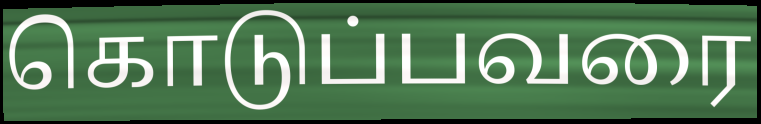
கொடுப்பவரை